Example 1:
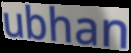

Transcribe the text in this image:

ubhan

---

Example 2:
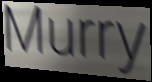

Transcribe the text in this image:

Murry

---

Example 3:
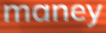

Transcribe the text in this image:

maney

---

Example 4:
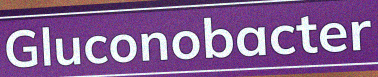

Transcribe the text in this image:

Gluconobacter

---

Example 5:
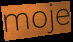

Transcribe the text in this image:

moje